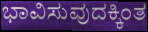
ಭಾವಿಸುವುದಕ್ಕಿಂತ